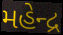
મહેન્દ્ર